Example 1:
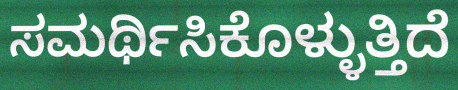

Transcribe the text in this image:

ಸಮರ್ಥಿಸಿಕೊಳ್ಳುತ್ತಿದೆ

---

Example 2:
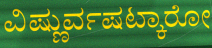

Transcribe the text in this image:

ವಿಷ್ಣುರ್ವಷಟ್ಕಾರೋ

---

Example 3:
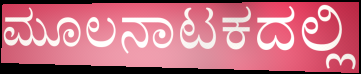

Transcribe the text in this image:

ಮೂಲನಾಟಕದಲ್ಲಿ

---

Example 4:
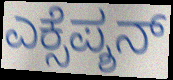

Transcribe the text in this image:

ಎಕ್ಸೆಪ್ಶನ್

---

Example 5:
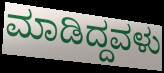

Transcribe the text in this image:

ಮಾಡಿದ್ದವಳು